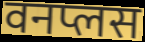
वनप्लस